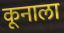
कूनाला